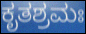
ಕೃತಶ್ರಮಃ